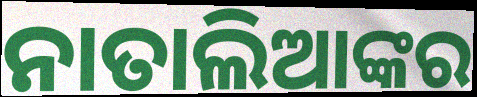
ନାତାଲିଆଙ୍କର